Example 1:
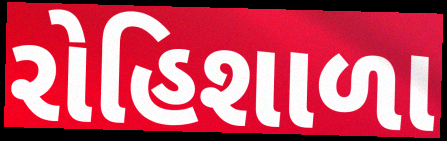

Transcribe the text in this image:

રોહિશાળા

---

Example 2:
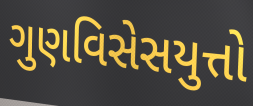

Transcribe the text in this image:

ગુણવિસેસયુત્તો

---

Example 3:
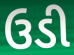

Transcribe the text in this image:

ઉડી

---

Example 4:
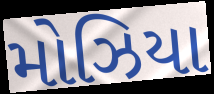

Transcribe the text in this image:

મોઝિયા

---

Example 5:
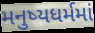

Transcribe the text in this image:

મનુષ્યધર્મમાં